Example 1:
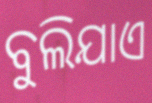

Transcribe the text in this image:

ବୁଲିଯାଏ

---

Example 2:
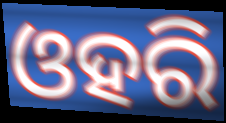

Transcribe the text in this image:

ଓହରି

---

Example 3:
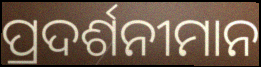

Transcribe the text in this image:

ପ୍ରଦର୍ଶନୀମାନ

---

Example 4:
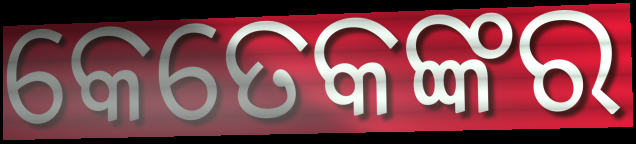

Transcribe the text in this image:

କେତେକଙ୍କର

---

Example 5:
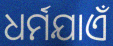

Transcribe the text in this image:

ଧର୍ମଯାଏଁ